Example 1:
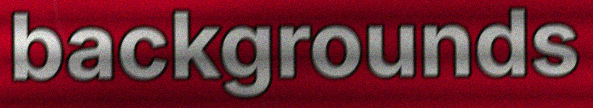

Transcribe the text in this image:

backgrounds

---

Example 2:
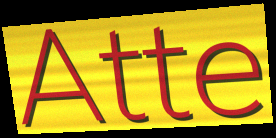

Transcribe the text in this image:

Atte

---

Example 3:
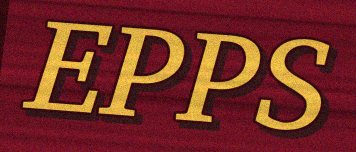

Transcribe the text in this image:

EPPS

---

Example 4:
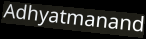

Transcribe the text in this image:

Adhyatmanand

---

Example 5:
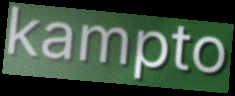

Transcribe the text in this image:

kampto